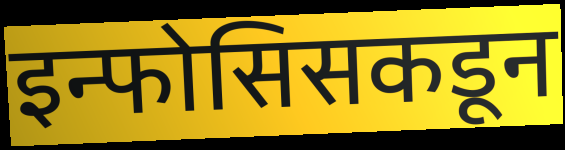
इन्फोसिसकडून